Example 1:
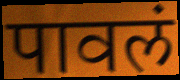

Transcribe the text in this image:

पावलं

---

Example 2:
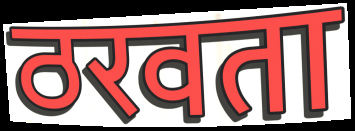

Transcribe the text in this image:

ठरवता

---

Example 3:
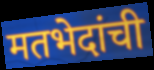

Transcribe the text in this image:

मतभेदांची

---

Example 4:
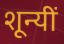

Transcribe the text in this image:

शून्यीं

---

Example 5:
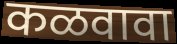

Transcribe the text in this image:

कळवावा